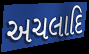
અચલાદિ